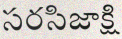
సరసిజాక్షి